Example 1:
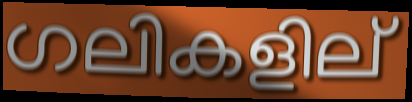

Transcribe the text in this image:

ഗലികളില്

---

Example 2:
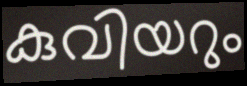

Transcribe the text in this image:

കുവിയറും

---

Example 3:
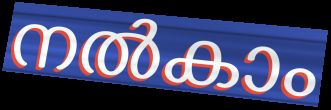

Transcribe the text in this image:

നൽകാം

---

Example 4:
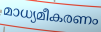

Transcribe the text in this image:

മാധ്യമീകരണം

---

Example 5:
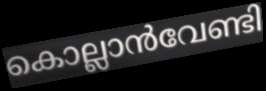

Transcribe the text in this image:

കൊല്ലാൻവേണ്ടി